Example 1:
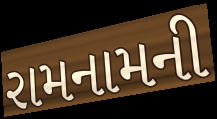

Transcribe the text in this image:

રામનામની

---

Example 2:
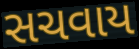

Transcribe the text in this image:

સચવાય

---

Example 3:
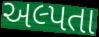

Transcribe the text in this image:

અલ્પતા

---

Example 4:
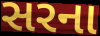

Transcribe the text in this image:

સરના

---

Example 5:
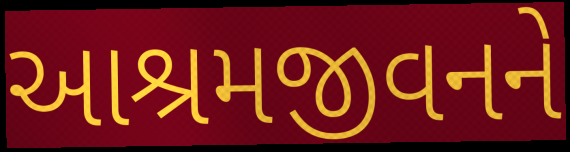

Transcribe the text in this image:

આશ્રમજીવનને